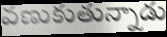
వణుకుతున్నాడు